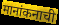
मानांकनाची